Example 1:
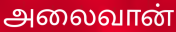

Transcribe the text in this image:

அலைவான்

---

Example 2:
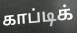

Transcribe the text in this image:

காப்டிக்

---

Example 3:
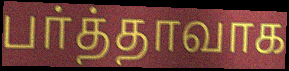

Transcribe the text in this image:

பர்த்தாவாக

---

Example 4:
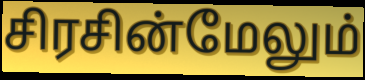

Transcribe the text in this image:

சிரசின்மேலும்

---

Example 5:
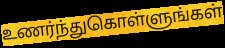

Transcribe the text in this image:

உணர்ந்துகொள்ளுங்கள்